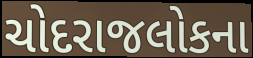
ચોદરાજલોકના